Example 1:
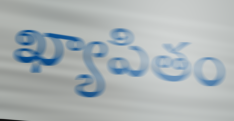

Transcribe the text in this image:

ఖ్యాపితం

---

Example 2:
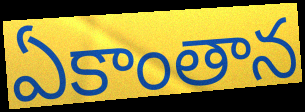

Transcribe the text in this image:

ఏకాంతాన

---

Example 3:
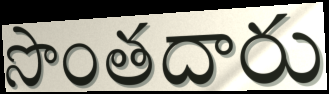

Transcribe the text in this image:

సొంతదారు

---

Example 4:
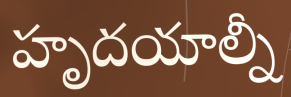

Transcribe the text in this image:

హృదయాల్నీ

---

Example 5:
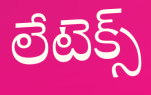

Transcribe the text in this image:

లేటెక్స్